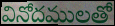
వినోదములతో